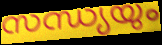
സന്ധ്യയും